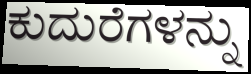
ಕುದುರೆಗಳನ್ನು